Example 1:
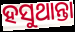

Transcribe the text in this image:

ହସୁଥାନ୍ତା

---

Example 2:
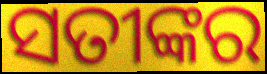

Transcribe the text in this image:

ସତୀଙ୍କର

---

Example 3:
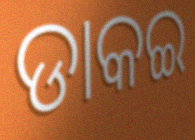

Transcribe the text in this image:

ଡାକଇ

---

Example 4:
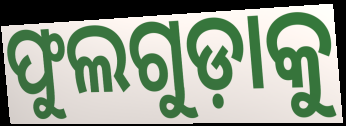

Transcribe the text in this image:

ଫୁଲଗୁଡ଼ାକୁ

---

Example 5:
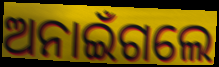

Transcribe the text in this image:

ଅନାଇଁଗଲେ